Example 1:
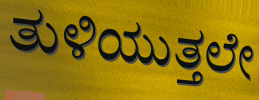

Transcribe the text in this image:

ತುಳಿಯುತ್ತಲೇ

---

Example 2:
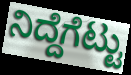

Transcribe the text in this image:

ನಿದ್ದೆಗೆಟ್ಟು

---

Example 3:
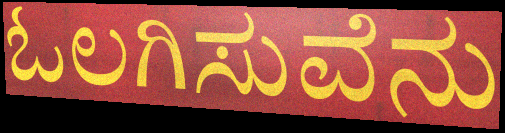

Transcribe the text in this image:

ಓಲಗಿಸುವೆನು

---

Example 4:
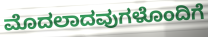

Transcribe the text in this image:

ಮೊದಲಾದವುಗಳೊಂದಿಗೆ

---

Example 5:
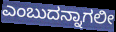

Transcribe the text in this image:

ಎಂಬುದನ್ನಾಗಲೀ